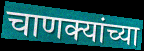
चाणक्यांच्या